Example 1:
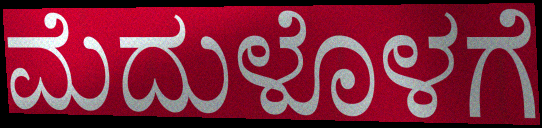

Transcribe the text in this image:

ಮೆದುಳೊಳಗೆ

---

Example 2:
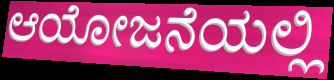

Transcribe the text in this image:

ಆಯೋಜನೆಯಲ್ಲಿ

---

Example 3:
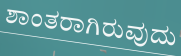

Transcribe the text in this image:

ಶಾಂತರಾಗಿರುವುದು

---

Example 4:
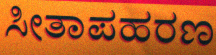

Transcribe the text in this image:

ಸೀತಾಪಹರಣ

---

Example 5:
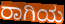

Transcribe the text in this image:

ರಾಗಿಯ